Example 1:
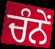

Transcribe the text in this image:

ਚੰਨੇਂ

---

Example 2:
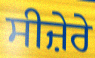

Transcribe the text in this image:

ਸੀਜ਼ੇਰੇ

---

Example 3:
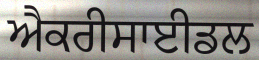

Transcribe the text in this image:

ਐਕਰੀਸਾਈਡਲ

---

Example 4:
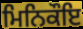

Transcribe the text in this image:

ਮਿਨਿਕੌਇ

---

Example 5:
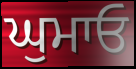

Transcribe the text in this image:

ਘੁਮਾਓ